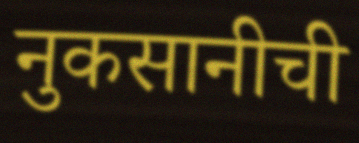
नुकसानीची